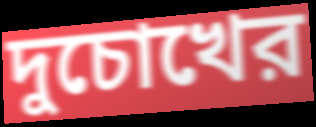
দুচোখের